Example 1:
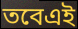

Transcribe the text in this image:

তবেএই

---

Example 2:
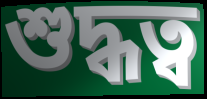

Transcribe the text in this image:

শুদ্ধত্ব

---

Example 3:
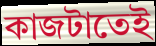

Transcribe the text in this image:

কাজটাতেই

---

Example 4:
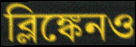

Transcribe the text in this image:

ব্লিঙ্কেনও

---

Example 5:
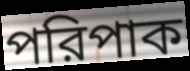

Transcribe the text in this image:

পরিপাক